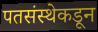
पतसंस्थेकडून